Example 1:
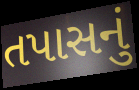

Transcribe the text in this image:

તપાસનું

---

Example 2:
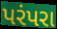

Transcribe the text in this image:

પરંપરા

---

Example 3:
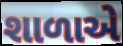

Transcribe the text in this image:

શાળાએે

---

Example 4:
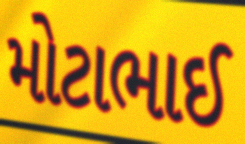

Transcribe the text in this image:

મોટાભાઈ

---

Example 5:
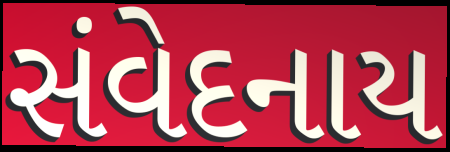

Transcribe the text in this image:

સંવેદનાય